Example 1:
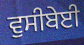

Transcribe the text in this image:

ਵੁਸੀਬੇਈ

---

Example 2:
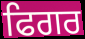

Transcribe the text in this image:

ਫਿਗਰ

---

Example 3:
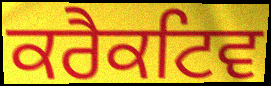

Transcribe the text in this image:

ਕਰੈਕਟਿਵ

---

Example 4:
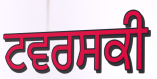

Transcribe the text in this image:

ਟਵਰਸਕੀ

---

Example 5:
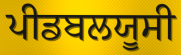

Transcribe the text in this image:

ਪੀਡਬਲਯੂਸੀ